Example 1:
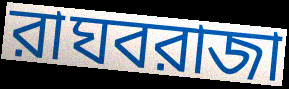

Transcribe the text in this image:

রাঘবরাজা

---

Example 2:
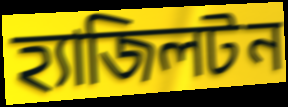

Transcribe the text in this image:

হ্যাজিলটন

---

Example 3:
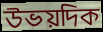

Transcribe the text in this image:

উভয়দিক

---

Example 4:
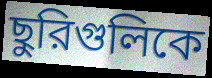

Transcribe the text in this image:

ছুরিগুলিকে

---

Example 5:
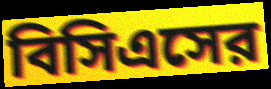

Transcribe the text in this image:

বিসিএসের